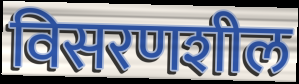
विसरणशील